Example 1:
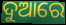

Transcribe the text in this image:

ଦୁଆରେ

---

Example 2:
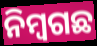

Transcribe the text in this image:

ନିମ୍ୱଗଛ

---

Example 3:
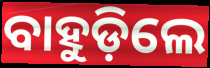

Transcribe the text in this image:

ବାହୁଡ଼ିଲେ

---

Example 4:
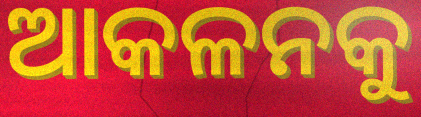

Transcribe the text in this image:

ଆକଳନକୁ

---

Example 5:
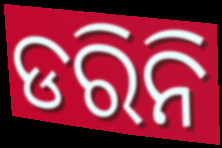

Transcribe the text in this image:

ଡରିନି